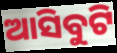
ଆସିବୁଟି